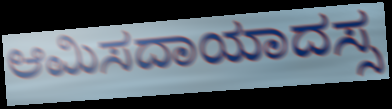
ಆಮಿಸದಾಯಾದಸ್ಸ